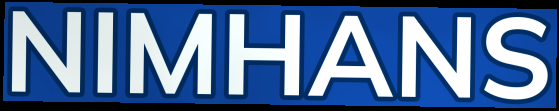
NIMHANS